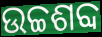
ଉଚ୍ଚଶବ୍ଦ